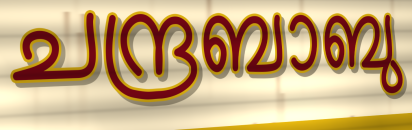
ചന്ദ്രബാബു